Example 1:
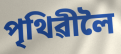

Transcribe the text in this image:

পৃথিৱীলৈ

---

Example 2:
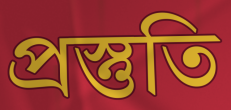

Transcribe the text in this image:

প্ৰস্তুতি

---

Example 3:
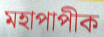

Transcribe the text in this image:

মহাপাপীক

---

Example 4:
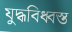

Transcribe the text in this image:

যুদ্ধবিধ্বস্ত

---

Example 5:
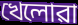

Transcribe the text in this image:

খেলোৱা